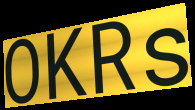
OKRs